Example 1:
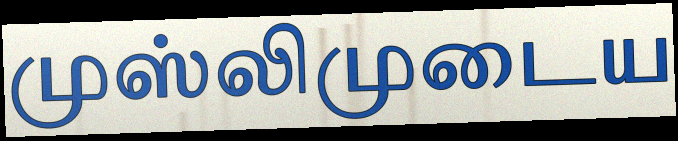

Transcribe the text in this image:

முஸ்லிமுடைய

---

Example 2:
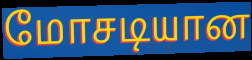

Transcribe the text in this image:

மோசடியான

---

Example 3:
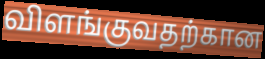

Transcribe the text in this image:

விளங்குவதற்கான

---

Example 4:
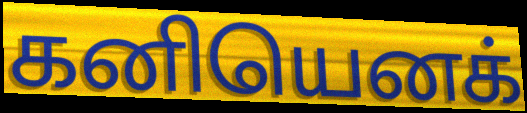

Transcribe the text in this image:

கனியெனக்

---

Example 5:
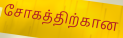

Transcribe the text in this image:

சோகத்திற்கான